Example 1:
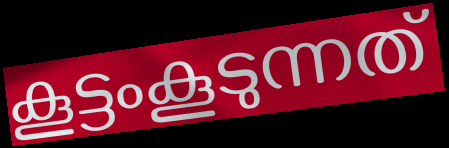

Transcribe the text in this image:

കൂട്ടംകൂടുന്നത്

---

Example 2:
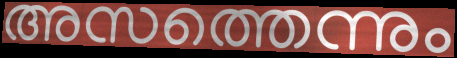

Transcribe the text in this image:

അസത്തെന്നും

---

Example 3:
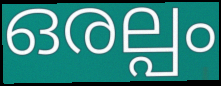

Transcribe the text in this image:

ഒരല്പം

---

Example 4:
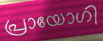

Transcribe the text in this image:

പ്രായോഗി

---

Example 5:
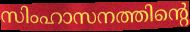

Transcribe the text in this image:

സിംഹാസനത്തിന്റെ